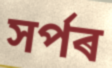
সৰ্পৰ